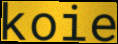
koie